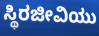
ಸ್ಥಿರಜೀವಿಯು